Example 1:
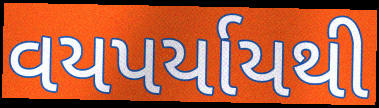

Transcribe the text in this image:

વયપર્યાયથી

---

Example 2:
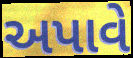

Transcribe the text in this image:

અપાવે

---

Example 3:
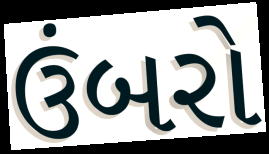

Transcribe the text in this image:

ઉંબરો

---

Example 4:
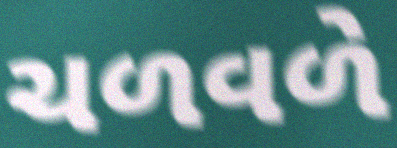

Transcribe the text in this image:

ચળવળે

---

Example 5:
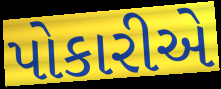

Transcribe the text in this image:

પોકારીએ